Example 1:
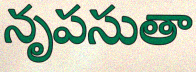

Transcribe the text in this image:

నృపసుతా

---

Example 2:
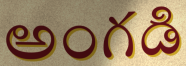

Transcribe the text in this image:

అంగడి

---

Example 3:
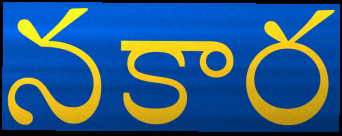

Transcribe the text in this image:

నకార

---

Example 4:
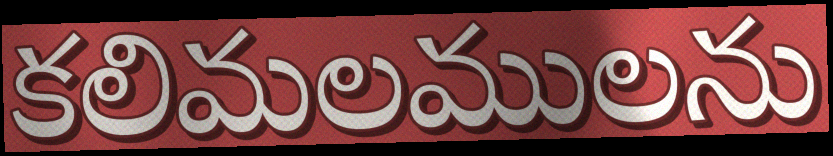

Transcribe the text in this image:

కలిమలములను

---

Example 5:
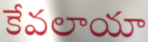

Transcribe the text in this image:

కేవలాయా